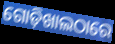
ଗୋଡ଼ିଖାଲଠାରେ